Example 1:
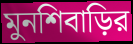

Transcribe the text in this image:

মুনশিবাড়ির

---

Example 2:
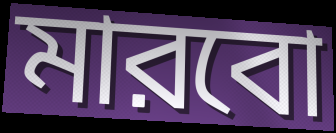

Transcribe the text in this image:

মারবো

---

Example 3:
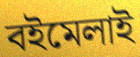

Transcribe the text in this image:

বইমেলাই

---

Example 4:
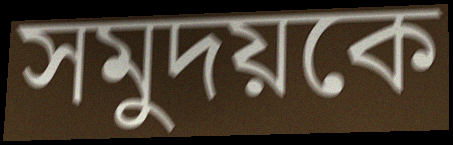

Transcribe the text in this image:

সমুদয়কে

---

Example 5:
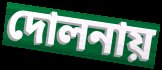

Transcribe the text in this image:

দোলনায়